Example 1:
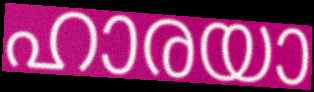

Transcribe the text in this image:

ഹാരയാ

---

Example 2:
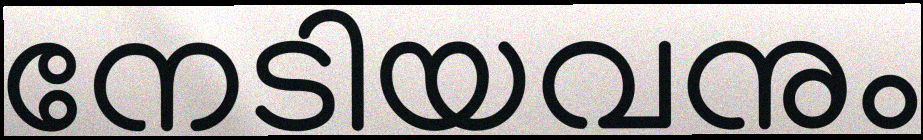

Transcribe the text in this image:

നേടിയവനും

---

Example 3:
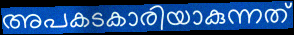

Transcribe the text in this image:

അപകടകാരിയാകുന്നത്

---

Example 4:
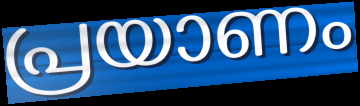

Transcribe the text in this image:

പ്രയാണം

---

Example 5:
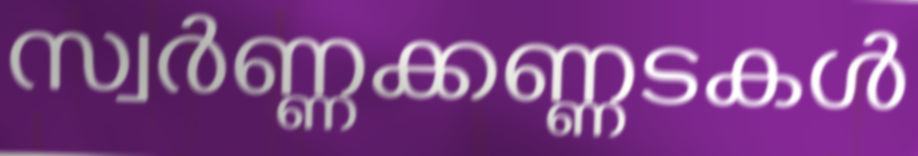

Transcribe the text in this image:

സ്വർണ്ണക്കണ്ണടകൾ